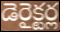
డెరైక్టర్ల